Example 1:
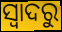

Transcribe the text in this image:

ସ୍ବାଦରୁ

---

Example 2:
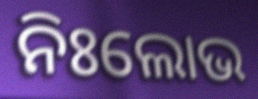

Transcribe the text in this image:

ନିଃଲୋଭ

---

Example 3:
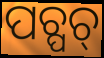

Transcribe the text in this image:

ପଚ୍ପଚ୍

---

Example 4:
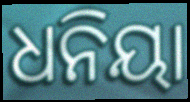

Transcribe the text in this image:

ଧନିୟା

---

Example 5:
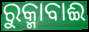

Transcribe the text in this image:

ରୁକ୍ମାବାଈ